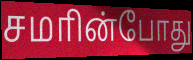
சமரின்போது